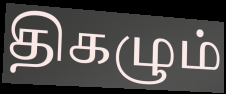
திகழும்